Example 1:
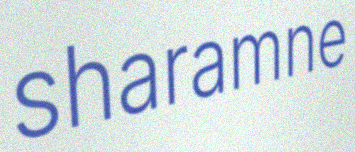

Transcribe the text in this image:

sharamne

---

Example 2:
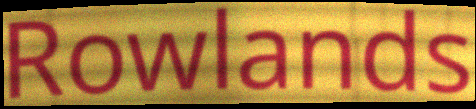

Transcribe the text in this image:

Rowlands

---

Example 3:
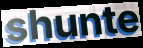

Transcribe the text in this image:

shunte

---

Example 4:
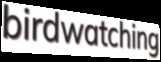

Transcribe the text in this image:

birdwatching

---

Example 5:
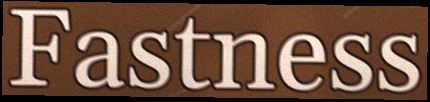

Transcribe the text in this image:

Fastness